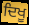
ਦਿਖੂ